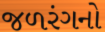
જળરંગનો